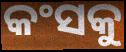
କଂସକୁ